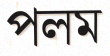
পলম